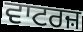
ਵਾਟਰਜ਼